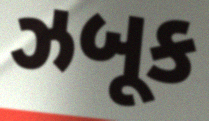
ઝબૂક